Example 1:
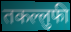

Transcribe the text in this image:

तकल्लुफी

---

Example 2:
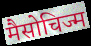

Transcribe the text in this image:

मैसोचिज्म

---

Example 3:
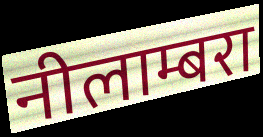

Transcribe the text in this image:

नीलाम्बरा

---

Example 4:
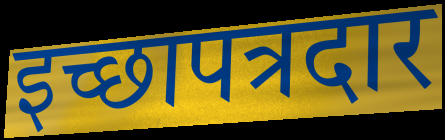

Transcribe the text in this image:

इच्छापत्रदार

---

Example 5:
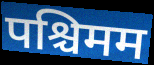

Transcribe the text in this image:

पश्चिमम